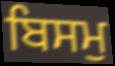
ਬਿਸਮੁ